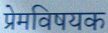
प्रेमविषयक